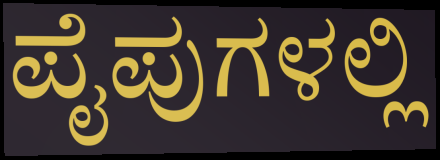
ಪೈಪುಗಳಲ್ಲಿ